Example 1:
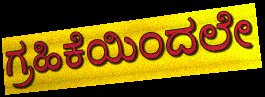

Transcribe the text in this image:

ಗ್ರಹಿಕೆಯಿಂದಲೇ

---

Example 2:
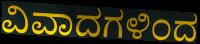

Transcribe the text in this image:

ವಿವಾದಗಳಿಂದ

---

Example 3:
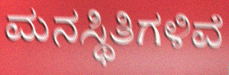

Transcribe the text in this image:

ಮನಸ್ಥಿತಿಗಳಿವೆ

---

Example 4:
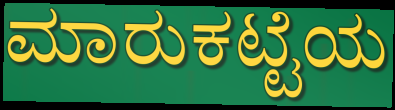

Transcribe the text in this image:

ಮಾರುಕಟ್ಟೆಯ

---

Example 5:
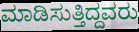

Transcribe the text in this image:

ಮಾಡಿಸುತ್ತಿದ್ದವರು